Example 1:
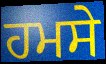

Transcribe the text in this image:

ਹਮਸੇ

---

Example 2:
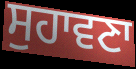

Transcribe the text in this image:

ਸੁਹਾਵਣਾ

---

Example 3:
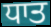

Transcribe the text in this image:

ਧਾਤ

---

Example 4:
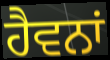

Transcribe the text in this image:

ਹੈਵਨਾਂ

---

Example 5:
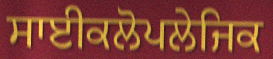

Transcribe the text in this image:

ਸਾਈਕਲੋਪਲੇਜਿਕ